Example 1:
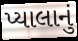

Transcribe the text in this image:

પ્યાલાનું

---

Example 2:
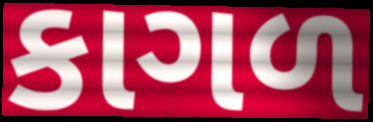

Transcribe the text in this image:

કાગળ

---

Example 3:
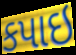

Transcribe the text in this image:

કપાઇ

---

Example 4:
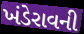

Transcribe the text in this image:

ખંડેરાવની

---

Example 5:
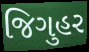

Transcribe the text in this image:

જિગુહર